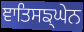
ਞਾਤਿਸਙ੍ਘੇਨ